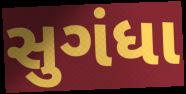
સુગંધા